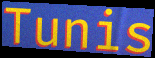
Tunis